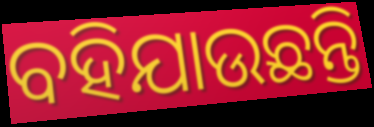
ବହିଯାଉଛନ୍ତି